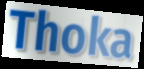
Thoka